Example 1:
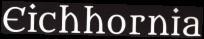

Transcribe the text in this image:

Eichhornia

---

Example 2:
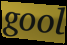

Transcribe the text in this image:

gool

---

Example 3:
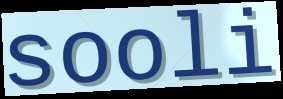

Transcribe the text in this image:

sooli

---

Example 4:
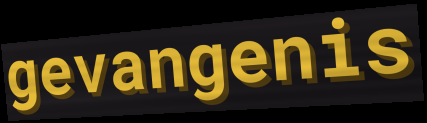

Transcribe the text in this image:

gevangenis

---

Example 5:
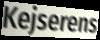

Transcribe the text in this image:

Kejserens